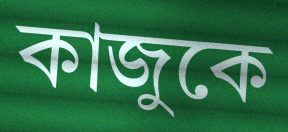
কাজুকে